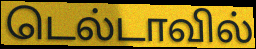
டெல்டாவில்